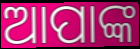
ଆପାଙ୍କ